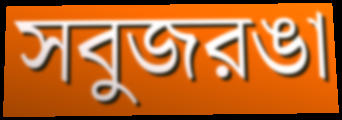
সবুজরঙা